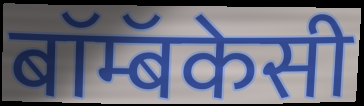
बॉम्बॅकेसी